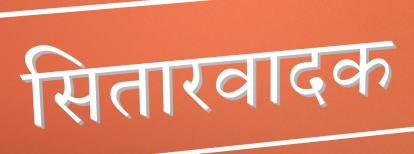
सितारवादक